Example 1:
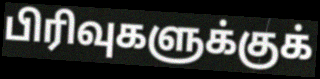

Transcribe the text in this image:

பிரிவுகளுக்குக்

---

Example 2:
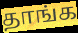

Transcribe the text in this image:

தாங்க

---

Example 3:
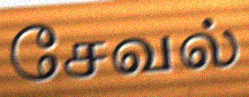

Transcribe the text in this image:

சேவல்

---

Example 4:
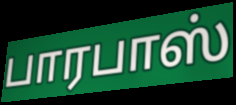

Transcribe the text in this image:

பாரபாஸ்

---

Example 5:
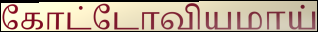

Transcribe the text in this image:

கோட்டோவியமாய்